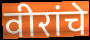
वीरांचे